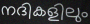
നദികളിലും